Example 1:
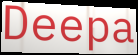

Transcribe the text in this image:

Deepa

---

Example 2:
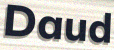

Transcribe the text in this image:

Daud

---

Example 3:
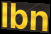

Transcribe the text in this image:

Ibn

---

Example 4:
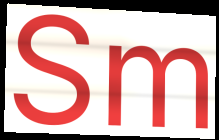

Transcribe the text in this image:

Sm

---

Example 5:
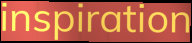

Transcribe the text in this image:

inspiration